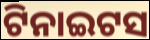
ଟିନାଇଟସ